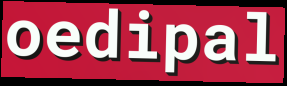
oedipal